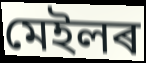
মেইলৰ